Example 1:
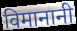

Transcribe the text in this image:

विमानानी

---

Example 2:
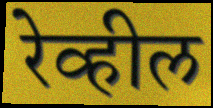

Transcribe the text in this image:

रेव्हील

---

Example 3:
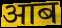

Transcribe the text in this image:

आब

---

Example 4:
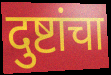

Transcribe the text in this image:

दुष्टांचा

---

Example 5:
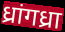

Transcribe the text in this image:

ध्रांगध्रा